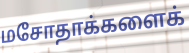
மசோதாக்களைக்